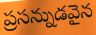
ప్రసన్నుడవైన